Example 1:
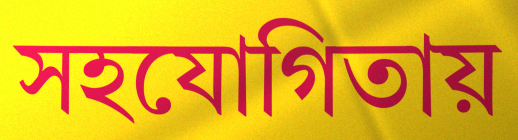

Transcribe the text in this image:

সহযোগিতায়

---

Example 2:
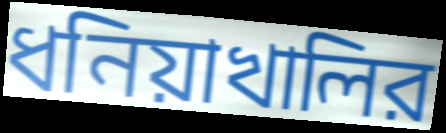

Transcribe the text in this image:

ধনিয়াখালির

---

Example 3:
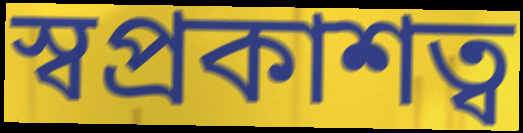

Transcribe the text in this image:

স্বপ্রকাশত্ব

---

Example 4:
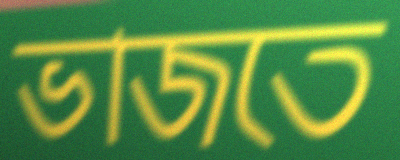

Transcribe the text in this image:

ভাজতে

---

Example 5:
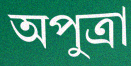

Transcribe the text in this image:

অপুত্রা